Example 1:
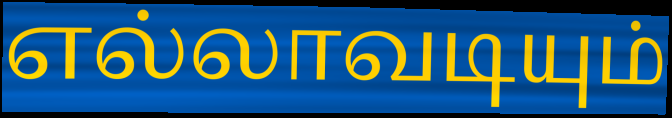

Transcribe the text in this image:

எல்லாவடியும்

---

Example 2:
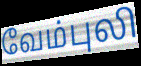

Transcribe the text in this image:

வேம்புலி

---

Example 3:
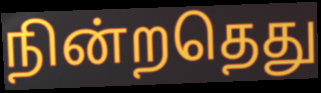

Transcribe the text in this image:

நின்றதெது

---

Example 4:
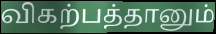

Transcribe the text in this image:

விகற்பத்தானும்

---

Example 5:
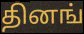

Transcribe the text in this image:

தினங்